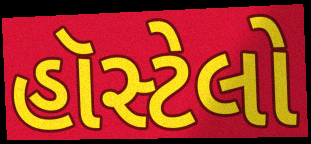
હૉસ્ટેલો